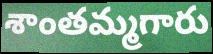
శాంతమ్మగారు